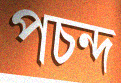
পচন্দ